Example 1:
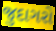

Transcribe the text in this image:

જુદાગરો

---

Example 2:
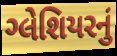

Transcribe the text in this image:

ગ્લેશિયરનું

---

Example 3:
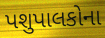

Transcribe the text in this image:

પશુપાલકોના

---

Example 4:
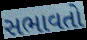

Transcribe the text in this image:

સભાવતો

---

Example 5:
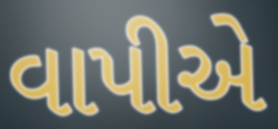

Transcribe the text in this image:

વાપીએ